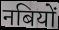
नबियों